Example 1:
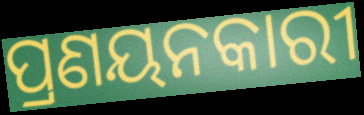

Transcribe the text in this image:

ପ୍ରଣୟନକାରୀ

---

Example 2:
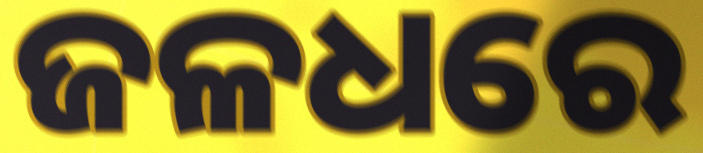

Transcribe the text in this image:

ଜଳଧରେ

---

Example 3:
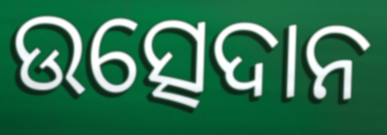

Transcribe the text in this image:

ଉତ୍ସେଦାନ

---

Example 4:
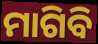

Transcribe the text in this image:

ମାଗିବି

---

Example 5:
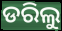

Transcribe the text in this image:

ଡରିଲୁ